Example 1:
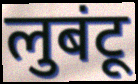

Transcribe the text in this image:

लुबंटू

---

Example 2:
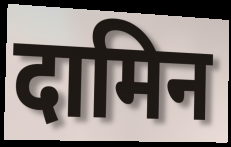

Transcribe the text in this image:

दामिन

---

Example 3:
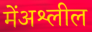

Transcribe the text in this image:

मेंअश्लील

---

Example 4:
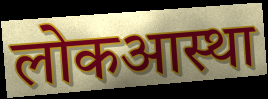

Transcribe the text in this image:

लोकआस्था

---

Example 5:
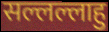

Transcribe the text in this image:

सल्लल्लाहु